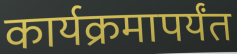
कार्यक्रमापर्यंत